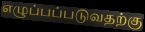
எழுப்பப்படுவதற்கு